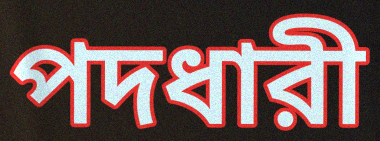
পদধারী